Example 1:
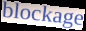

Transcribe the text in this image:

blockage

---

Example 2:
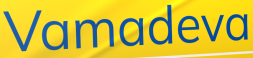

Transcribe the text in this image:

Vamadeva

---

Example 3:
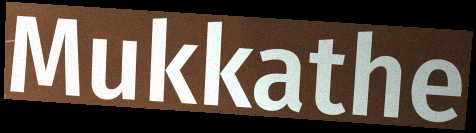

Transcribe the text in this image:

Mukkathe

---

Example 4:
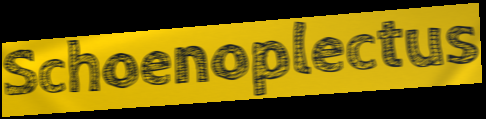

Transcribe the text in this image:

Schoenoplectus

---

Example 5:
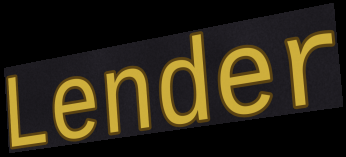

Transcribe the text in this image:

Lender